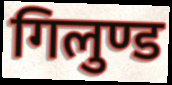
गिलुण्ड